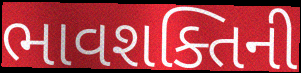
ભાવશક્તિની